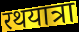
रथयात्रा